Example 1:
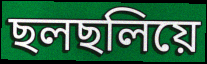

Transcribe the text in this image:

ছলছলিয়ে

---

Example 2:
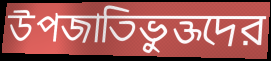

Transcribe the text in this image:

উপজাতিভুক্তদের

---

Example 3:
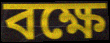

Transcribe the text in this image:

বক্ষে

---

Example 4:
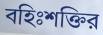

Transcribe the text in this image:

বহিঃশক্তির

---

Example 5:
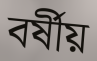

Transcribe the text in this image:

বর্ষীয়